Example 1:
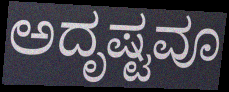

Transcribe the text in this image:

ಅದೃಷ್ಟವೂ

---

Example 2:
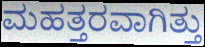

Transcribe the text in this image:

ಮಹತ್ತರವಾಗಿತ್ತು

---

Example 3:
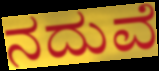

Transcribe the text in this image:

ನದುವೆ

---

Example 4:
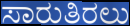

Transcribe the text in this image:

ಸಾರುತಿರಲು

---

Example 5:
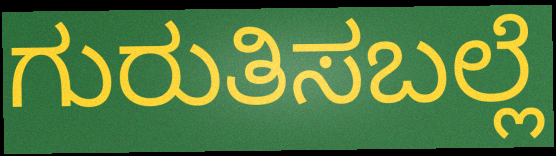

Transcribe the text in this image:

ಗುರುತಿಸಬಲ್ಲೆ